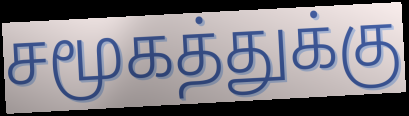
சமூகத்துக்கு